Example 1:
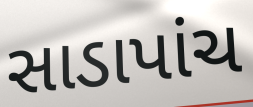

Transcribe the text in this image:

સાડાપાંચ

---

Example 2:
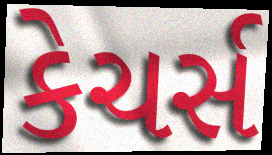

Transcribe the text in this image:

કેચર્સ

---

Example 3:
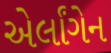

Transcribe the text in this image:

એર્લાંગેન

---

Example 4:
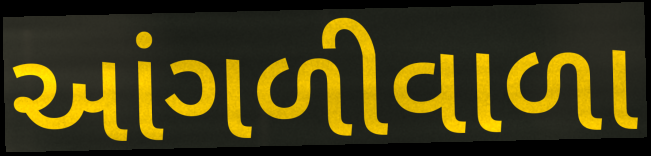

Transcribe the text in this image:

આંગળીવાળા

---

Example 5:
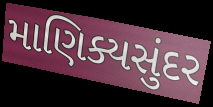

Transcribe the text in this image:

માણિક્યસુંદર